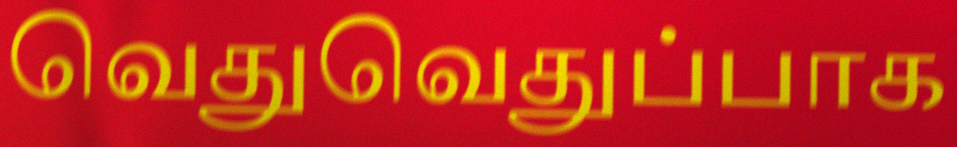
வெதுவெதுப்பாக